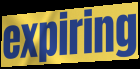
expiring